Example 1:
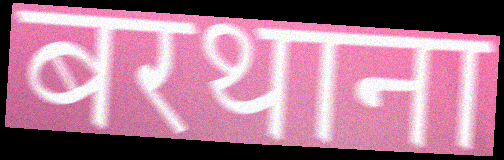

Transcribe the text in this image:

बरथाना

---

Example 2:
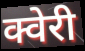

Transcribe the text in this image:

क्वेरी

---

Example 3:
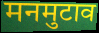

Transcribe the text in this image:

मनमुटाव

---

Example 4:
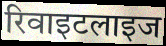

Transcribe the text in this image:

रिवाइटलाइज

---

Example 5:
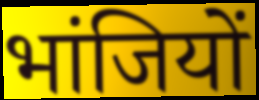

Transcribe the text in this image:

भांजियों